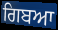
ਗਿਬਆ